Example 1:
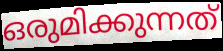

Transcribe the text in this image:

ഒരുമിക്കുന്നത്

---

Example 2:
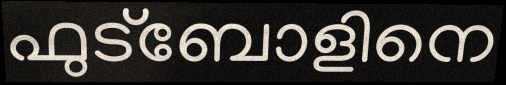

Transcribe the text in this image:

ഫുട്ബോളിനെ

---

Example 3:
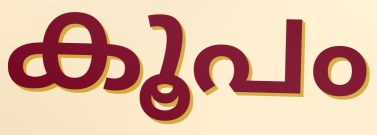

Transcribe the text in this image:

കൂപം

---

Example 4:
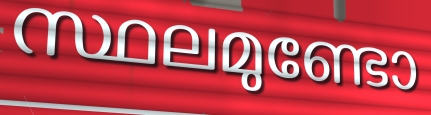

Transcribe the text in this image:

സ്ഥലമുണ്ടോ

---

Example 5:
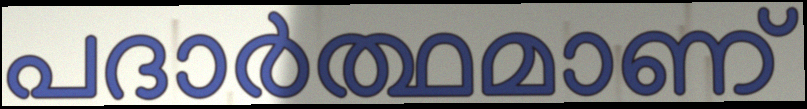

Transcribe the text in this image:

പദാർത്ഥമാണ്